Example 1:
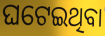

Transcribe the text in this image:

ଘଟେଇଥିବା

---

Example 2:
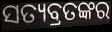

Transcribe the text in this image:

ସତ୍ୟବ୍ରତଙ୍କର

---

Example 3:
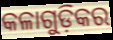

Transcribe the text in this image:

କଳାଗୁଡ଼ିକର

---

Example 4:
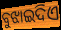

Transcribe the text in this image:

ବୁଝାଇଦିଏ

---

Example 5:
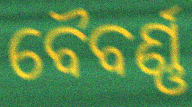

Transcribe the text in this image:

ବୈବର୍ଣ୍ଣ